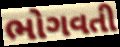
ભોગવતી